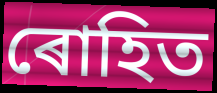
ৰোহিত